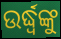
ଉର୍ଦ୍ଧ୍ୱଙ୍କୁ